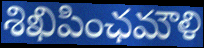
శిఖిపింఛమౌళి